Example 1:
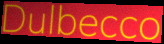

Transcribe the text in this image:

Dulbecco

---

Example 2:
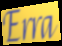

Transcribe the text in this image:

Erra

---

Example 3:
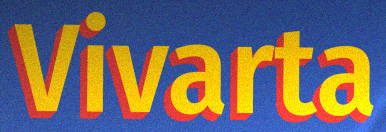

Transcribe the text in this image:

Vivarta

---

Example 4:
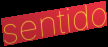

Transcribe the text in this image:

sentido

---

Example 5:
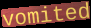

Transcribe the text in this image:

vomited